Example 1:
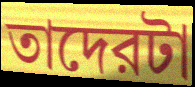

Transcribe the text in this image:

তাদেরটা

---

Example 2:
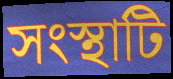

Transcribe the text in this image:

সংস্থাটি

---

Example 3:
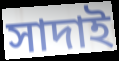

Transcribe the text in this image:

সাদাই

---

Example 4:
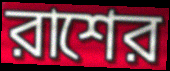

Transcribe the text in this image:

রাশের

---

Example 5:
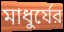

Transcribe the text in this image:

মাধুর্যের